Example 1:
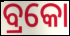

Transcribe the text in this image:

ବ୍ରକୋ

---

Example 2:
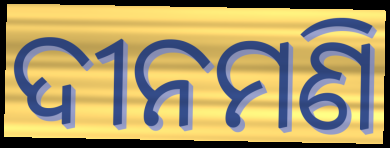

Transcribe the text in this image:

ଦୀନମଣି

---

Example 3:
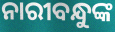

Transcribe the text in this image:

ନାରୀବନ୍ଧୁଙ୍କ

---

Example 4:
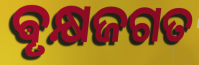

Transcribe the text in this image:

ଵୃକ୍ଷଜଗତ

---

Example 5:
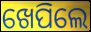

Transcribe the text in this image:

ଖେପିଲେ